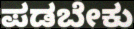
ಪಡಬೇಕು